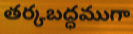
తర్కబద్ధముగా